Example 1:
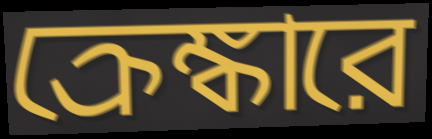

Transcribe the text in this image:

ক্রেঙ্কারে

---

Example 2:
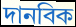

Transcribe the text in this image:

দানবিক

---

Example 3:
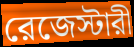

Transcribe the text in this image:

রেজেস্টারী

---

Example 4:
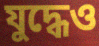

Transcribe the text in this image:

যুদ্ধেও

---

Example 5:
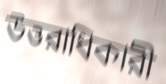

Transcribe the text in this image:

উত্তরাধিকারী